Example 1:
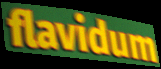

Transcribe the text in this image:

flavidum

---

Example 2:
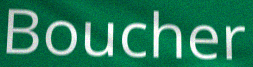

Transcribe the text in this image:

Boucher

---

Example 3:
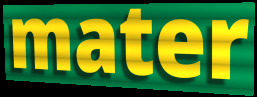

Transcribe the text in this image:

mater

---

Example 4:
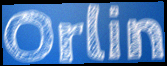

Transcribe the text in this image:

Orlin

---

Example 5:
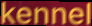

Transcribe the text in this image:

kennel